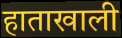
हाताखाली